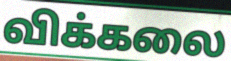
விக்கலை